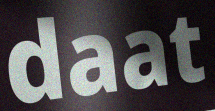
daat